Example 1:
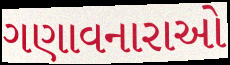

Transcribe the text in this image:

ગણાવનારાઓ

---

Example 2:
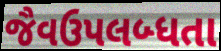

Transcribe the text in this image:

જૈવઉપલબ્ધતા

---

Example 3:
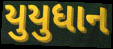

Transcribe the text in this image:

યુયુધાન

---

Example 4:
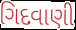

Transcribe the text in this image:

ગિદવાણી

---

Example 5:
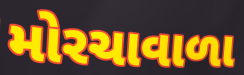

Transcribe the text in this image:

મોરચાવાળા